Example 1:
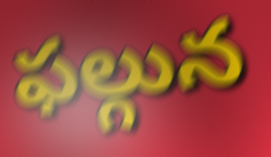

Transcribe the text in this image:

ఫల్గున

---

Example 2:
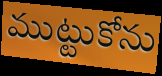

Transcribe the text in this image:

ముట్టుకోను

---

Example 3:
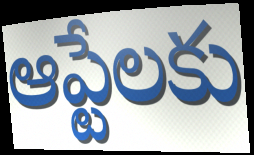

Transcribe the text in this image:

ఆప్టేలకు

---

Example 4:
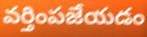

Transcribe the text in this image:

వర్తింపజేయడం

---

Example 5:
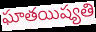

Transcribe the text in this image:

ఘాతయిష్యతి